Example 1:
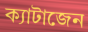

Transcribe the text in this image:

ক্যাটাজেন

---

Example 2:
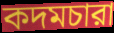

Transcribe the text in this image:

কদমচারা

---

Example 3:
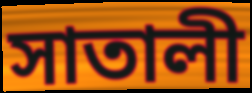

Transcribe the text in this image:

সাতালী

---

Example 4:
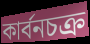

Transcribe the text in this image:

কার্বনচক্র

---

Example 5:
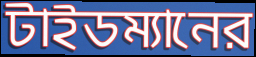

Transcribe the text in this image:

টাইডম্যানের